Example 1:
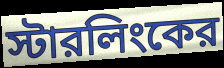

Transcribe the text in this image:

স্টারলিংকের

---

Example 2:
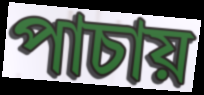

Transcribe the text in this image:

পাচায়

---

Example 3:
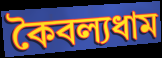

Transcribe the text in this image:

কৈবল্যধাম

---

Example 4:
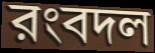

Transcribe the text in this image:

রংবদল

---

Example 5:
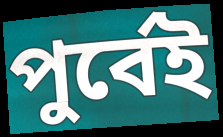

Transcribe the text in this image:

পুর্বেই